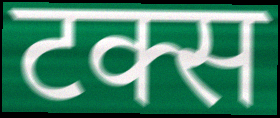
टक्स